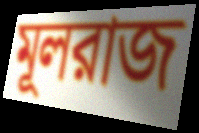
মূলরাজ